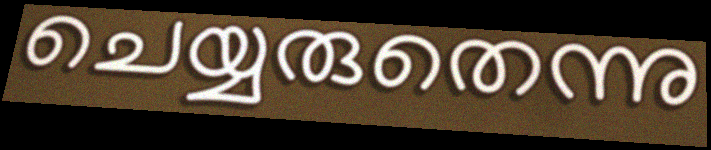
ചെയ്യരുതെന്നു